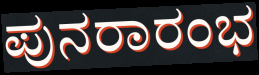
ಪುನರಾರಂಭ